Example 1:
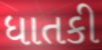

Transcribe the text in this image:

ધાતકી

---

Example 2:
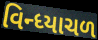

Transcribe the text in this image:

વિન્ધ્યાચળ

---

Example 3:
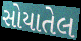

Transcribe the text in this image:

સોયાતેલ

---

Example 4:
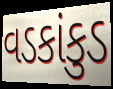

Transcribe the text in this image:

વડકાંકુડ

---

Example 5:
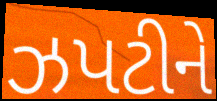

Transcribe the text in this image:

ઝપટીને